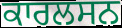
ਕਾਰਲਸਨ